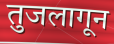
तुजलागून